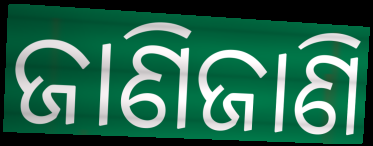
ଜାଣିଜାଣି